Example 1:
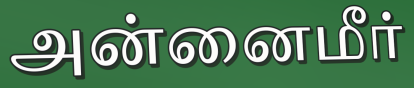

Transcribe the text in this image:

அன்னைமீர்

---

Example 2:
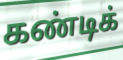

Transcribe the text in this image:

கண்டிக்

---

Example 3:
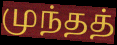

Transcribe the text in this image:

முந்தத்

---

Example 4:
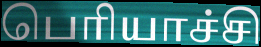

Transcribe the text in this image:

பெரியாச்சி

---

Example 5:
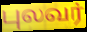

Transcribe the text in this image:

புலவர்